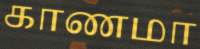
காணமா